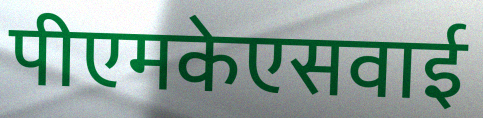
पीएमकेएसवाई